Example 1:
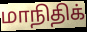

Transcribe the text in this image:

மாநிதிக்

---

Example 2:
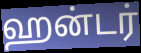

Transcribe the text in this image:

ஹன்டர்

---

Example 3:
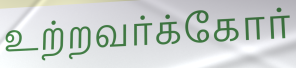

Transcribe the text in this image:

உற்றவர்க்கோர்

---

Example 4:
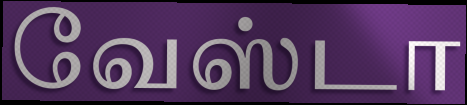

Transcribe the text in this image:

வேஸ்டா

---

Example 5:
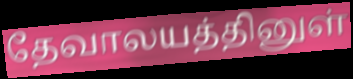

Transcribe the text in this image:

தேவாலயத்தினுள்